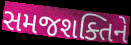
સમજશક્તિને